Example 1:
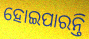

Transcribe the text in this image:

ହୋଇପାରନ୍ତି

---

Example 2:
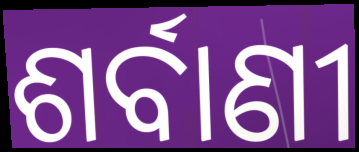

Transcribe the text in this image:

ଶର୍ବାଣୀ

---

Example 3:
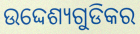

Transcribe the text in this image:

ଉଦ୍ଦେଶ୍ୟଗୁଡିକର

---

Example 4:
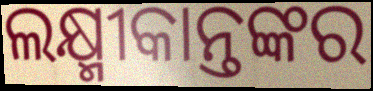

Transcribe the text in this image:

ଲକ୍ଷ୍ମୀକାନ୍ତଙ୍କର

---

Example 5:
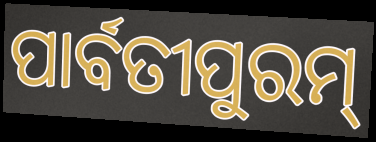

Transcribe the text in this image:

ପାର୍ବତୀପୁରମ୍